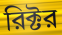
রিক্টর